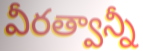
వీరత్వాన్నీ